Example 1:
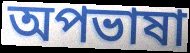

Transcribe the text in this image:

অপভাষা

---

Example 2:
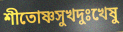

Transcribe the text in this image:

শীতোষ্ণসুখদুঃখেষু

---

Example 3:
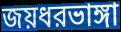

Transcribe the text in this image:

জয়ধরভাঙ্গা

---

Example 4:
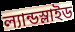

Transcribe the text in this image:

ল্যান্ডস্লাইড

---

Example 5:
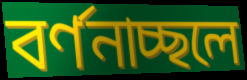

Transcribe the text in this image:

বর্ণনাচ্ছলে